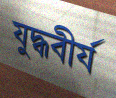
যুদ্ধবীর্য